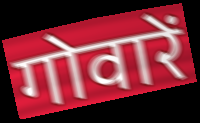
गोवारें